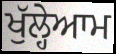
ਖੁੱਲ੍ਹੇਆਮ